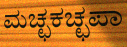
ಮಚ್ಛಕಚ್ಛಪಾ